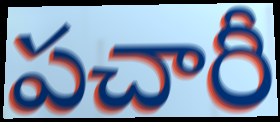
పచారీ